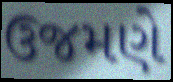
ઉજમણે